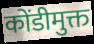
कोंडीमुक्त